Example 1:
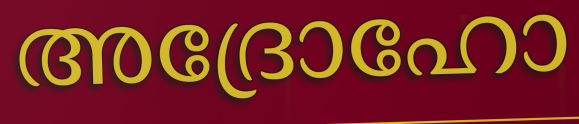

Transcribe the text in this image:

അദ്രോഹോ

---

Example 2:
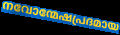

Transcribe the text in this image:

നവോന്മേഷപ്രദമായ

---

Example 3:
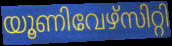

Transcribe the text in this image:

യൂണിവേഴ്സിറ്റി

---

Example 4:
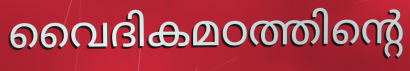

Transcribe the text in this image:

വൈദികമഠത്തിന്റെ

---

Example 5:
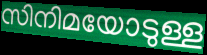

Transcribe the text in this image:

സിനിമയോടുള്ള